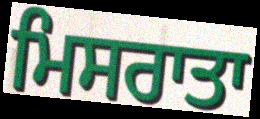
ਮਿਸਰਾਤਾ